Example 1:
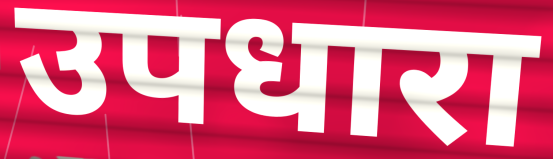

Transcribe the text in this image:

उपधारा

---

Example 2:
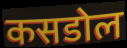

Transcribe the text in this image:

कसडोल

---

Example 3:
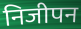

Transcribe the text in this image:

निजीपन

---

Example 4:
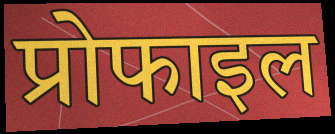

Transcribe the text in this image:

प्रोफाइल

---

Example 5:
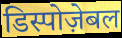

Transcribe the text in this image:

डिस्पोज़ेबल